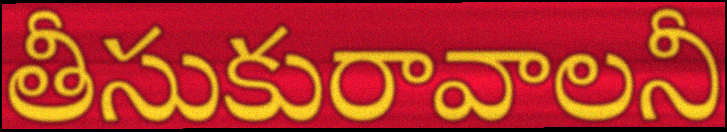
తీసుకురావాలనీ